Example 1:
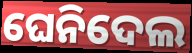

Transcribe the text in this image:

ଘେନିଦେଲ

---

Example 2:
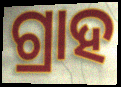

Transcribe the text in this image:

ଗ୍ରାହ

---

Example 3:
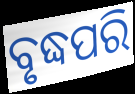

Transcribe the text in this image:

ବୃଦ୍ଧପରି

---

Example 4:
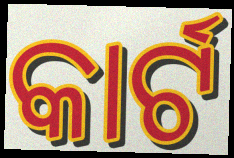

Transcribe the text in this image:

କାର୍ଟ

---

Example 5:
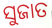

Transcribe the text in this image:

ସୁଜାତ